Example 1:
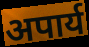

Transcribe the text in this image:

अपार्य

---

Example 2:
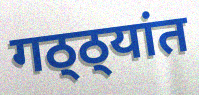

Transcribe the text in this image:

गठ्ठ्यांत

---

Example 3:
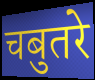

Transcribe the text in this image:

चबुतरे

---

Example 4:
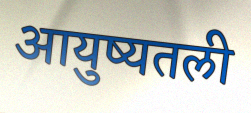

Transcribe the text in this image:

आयुष्यतली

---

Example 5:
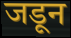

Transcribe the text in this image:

जडून